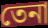
তেনা